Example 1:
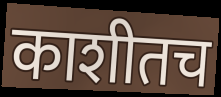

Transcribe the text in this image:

काशीतच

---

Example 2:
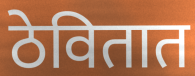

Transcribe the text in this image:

ठेवितात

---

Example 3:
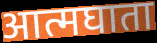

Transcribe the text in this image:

आत्मघाता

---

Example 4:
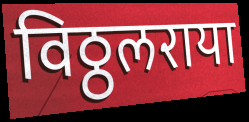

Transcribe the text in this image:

विठ्ठलराया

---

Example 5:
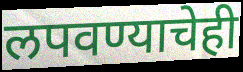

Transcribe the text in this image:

लपवण्याचेही